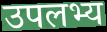
उपलभ्य